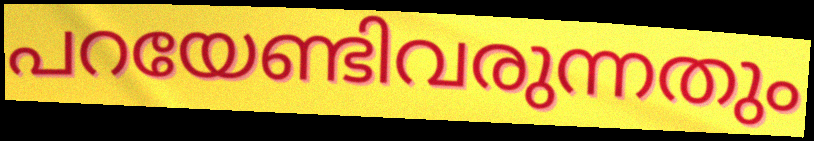
പറയേണ്ടിവരുന്നതും